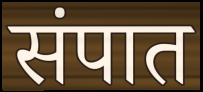
संपात